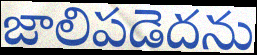
జాలిపడెదను